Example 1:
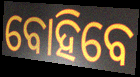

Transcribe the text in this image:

ବୋହିବେ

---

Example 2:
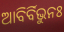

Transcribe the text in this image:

ଆବିର୍ବିଭୁନଃ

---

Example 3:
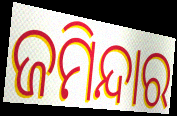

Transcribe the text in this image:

ଜମିନ୍ଦାର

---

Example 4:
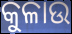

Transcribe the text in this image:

କୁଳାଉ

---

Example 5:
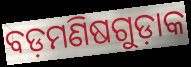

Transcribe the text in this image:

ବଡ଼ମଣିଷଗୁଡ଼ାକ